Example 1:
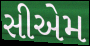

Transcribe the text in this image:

સીએમ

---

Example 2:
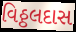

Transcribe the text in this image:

વિઠ્ઠલદાસ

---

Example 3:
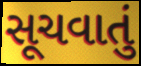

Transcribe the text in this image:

સૂચવાતું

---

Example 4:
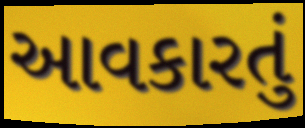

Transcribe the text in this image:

આવકારતું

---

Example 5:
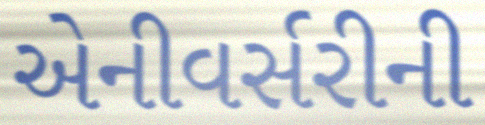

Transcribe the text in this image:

એનીવર્સરીની